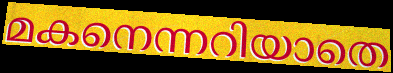
മകനെന്നറിയാതെ